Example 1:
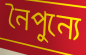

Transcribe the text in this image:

নৈপুন্যে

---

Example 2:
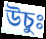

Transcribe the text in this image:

উচুঃ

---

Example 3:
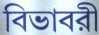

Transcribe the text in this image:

বিভাবরী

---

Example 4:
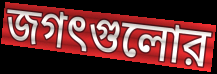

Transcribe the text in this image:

জগৎগুলোর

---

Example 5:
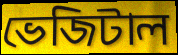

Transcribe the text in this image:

ভেজিটাল